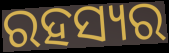
ରହସ୍ୟର